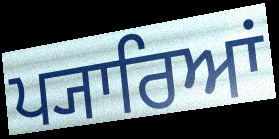
ਪ੍ਯਾਰਿਆਂ